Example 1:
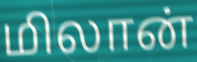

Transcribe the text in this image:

மிலான்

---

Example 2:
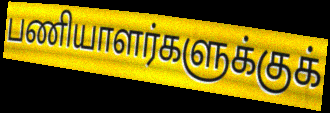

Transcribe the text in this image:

பணியாளர்களுக்குக்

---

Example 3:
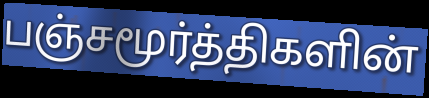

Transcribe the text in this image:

பஞ்சமூர்த்திகளின்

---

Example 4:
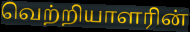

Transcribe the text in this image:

வெற்றியாளரின்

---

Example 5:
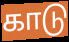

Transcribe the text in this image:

காடு